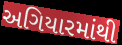
અગિયારમાંથી